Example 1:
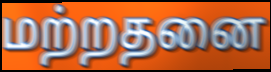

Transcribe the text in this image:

மற்றதனை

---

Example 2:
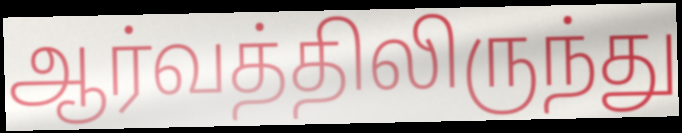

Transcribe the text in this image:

ஆர்வத்திலிருந்து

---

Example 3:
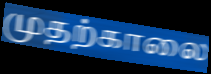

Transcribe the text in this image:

முதற்காலை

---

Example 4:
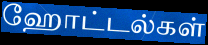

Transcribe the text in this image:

ஹோட்டல்கள்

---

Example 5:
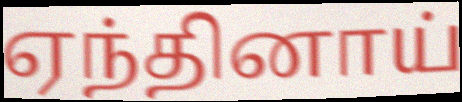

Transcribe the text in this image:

ஏந்தினாய்